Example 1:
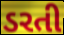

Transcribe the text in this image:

ડરતી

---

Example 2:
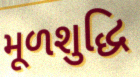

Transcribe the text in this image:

મૂળશુદ્ધિ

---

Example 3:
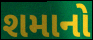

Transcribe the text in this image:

શમાનો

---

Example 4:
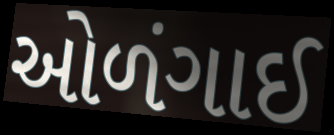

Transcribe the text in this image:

ઓળંગાઈ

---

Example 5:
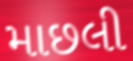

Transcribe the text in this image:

માછલી